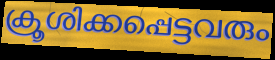
ക്രൂശിക്കപ്പെട്ടവരും